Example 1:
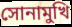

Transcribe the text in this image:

সোনামুখি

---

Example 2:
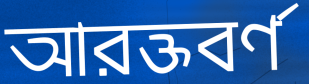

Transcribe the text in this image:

আরক্তবর্ণ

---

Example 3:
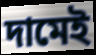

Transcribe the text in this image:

দামেই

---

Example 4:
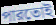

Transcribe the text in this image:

পারতোই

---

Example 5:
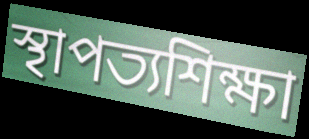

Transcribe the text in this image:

স্থাপত্যশিক্ষা